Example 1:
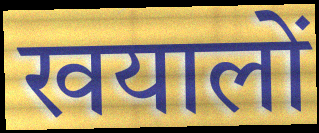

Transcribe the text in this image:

खयालों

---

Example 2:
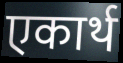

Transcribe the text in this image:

एकार्थ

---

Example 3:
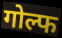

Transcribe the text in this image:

गोल्फ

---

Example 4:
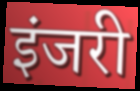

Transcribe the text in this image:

इंजरी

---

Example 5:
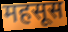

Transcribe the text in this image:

महसूस